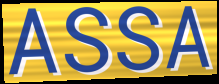
ASSA